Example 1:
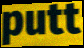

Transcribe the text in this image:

putt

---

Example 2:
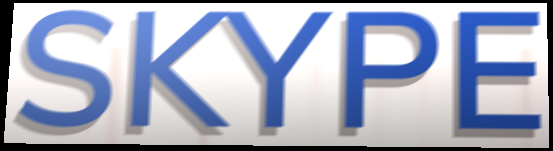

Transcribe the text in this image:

SKYPE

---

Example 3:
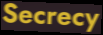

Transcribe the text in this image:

Secrecy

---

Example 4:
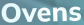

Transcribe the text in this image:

Ovens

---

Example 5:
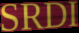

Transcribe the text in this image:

SRDI